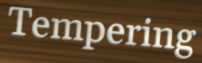
Tempering